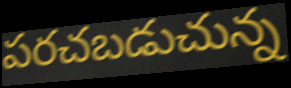
పరచబడుచున్న